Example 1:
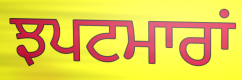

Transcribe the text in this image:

ਝਪਟਮਾਰਾਂ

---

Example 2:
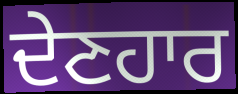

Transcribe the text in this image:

ਦੇਣਹਾਰ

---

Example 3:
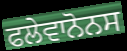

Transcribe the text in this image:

ਫਲੇਵਾਨੋਨਸ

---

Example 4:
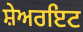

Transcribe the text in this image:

ਸ਼ੇਅਰਇਟ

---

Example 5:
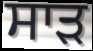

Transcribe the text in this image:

ਸਾਡ਼